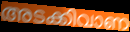
അടക്കിവാണ